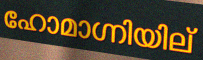
ഹോമാഗ്നിയില്